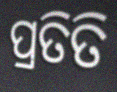
ପ୍ରତିତି